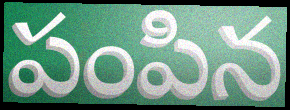
పంపిన